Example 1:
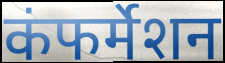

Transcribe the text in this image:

कंफर्मेशन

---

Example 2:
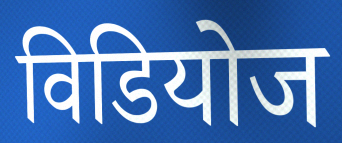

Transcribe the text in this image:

विडियोज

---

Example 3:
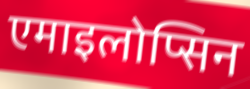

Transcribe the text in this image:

एमाइलोप्सिन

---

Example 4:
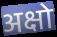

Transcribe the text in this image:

अक्षो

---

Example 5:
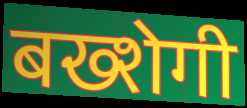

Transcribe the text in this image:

बख्शेगी